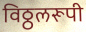
विठ्ठलरूपी